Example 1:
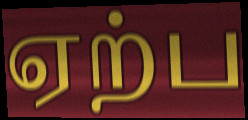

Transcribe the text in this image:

ஏற்ப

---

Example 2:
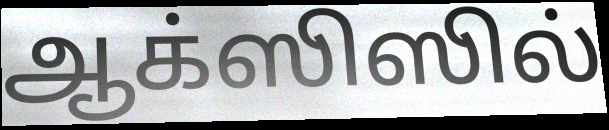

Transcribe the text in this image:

ஆக்ஸிஸில்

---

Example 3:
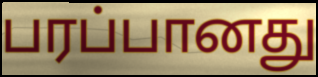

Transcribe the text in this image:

பரப்பானது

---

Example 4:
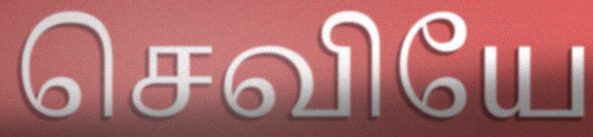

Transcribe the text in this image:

செவியே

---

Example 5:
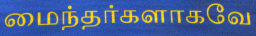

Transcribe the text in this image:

மைந்தர்களாகவே